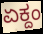
ಏಕ್ದಂ